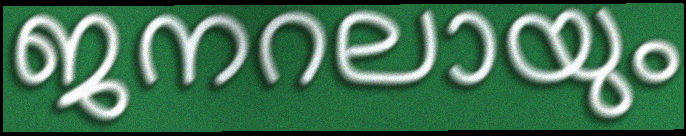
ജനറലായും